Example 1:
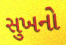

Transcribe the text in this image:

સુખનો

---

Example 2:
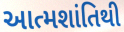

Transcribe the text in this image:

આત્મશાંતિથી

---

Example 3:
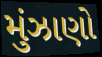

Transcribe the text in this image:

મુંઝાણો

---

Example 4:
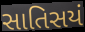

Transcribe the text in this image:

સાતિસયં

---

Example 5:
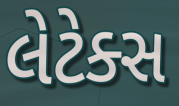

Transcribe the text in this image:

લેટેક્સ